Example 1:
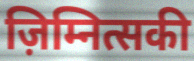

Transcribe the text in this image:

ज़िम्नित्सकी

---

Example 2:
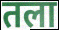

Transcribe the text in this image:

तला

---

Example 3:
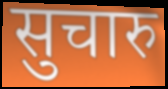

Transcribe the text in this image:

सुचारु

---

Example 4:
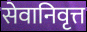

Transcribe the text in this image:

सेवानिवृत्त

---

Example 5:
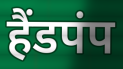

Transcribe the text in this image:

हैंडपंप